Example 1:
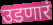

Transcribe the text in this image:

उडणारं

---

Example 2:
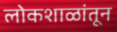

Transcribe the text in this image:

लोकशाळांतून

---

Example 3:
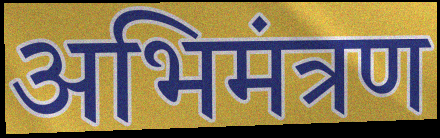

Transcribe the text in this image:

अभिमंत्रण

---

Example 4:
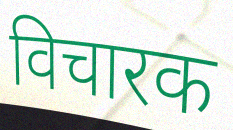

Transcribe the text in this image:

विचारक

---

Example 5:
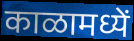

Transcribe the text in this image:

काळामध्यें